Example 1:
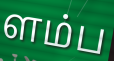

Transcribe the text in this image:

ளம்ப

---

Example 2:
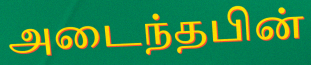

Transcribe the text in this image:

அடைந்தபின்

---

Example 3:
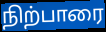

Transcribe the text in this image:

நிற்பாரை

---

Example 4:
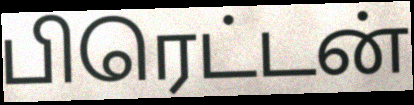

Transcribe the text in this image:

பிரெட்டன்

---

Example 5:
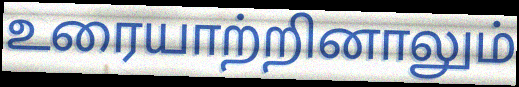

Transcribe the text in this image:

உரையாற்றினாலும்